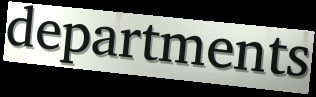
departments